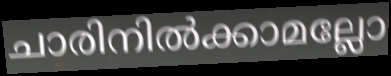
ചാരിനിൽക്കാമല്ലോ